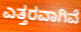
ಎತ್ತರವಾಗಿವೆ